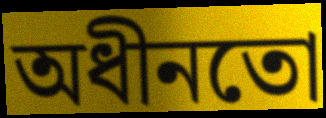
অধীনতো